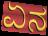
ಏನ